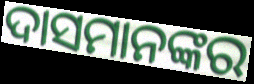
ଦାସମାନଙ୍କର